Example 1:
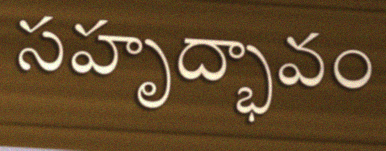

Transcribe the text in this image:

సహృద్భావం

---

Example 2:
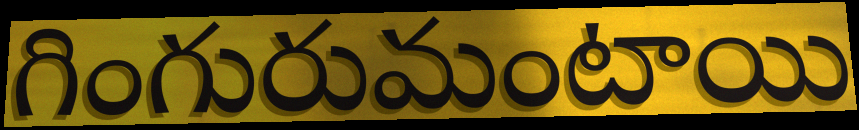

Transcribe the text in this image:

గింగురుమంటాయి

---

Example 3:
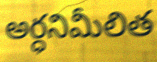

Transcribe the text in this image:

అర్ధనిమీలిత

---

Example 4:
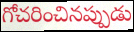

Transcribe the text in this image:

గోచరించినప్పుడు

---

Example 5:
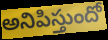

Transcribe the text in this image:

అనిపిస్తుందో